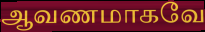
ஆவணமாகவே